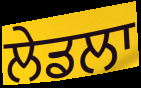
ਲੇਡਲਾ